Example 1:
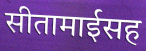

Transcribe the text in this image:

सीतामाईसह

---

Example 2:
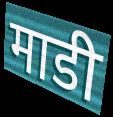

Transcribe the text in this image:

माडी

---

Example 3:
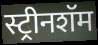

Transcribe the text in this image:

स्ट्रीनशॅम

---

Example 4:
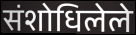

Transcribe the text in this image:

संशोधिलेले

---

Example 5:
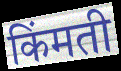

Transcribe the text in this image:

किंमती